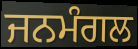
ਜਨਮੰਗਲ